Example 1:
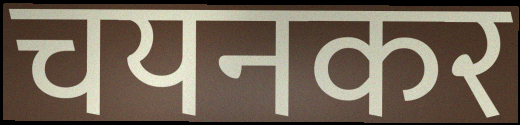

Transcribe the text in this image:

चयनकर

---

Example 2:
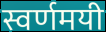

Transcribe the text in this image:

स्वर्णमयी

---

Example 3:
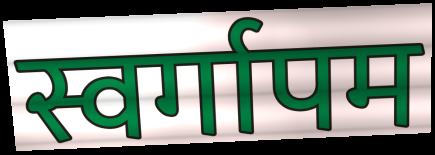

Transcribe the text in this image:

स्वर्गापम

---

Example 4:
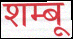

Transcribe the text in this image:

शम्बू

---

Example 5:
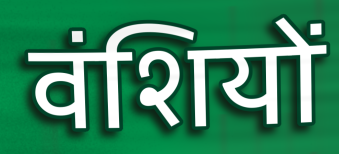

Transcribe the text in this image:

वंशियों